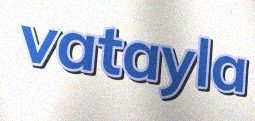
vatayla